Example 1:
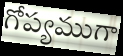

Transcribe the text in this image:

గోప్యముగా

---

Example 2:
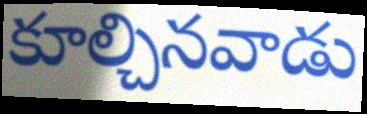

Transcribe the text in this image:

కూల్చినవాడు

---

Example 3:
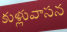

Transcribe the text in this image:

కుళ్లువాసన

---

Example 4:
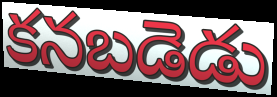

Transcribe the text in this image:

కనబడెడు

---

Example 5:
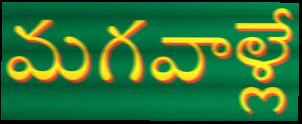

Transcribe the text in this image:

మగవాళ్లే